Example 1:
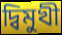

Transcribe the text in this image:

দ্বিমুখী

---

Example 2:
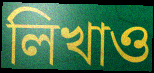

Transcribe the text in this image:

লিখাও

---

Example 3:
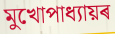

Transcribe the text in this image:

মুখোপাধ্যায়ৰ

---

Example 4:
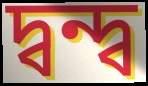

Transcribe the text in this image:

দ্বন্দ্ব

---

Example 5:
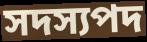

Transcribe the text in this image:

সদস্যপদ